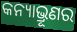
କନ୍ୟାଭ୍ରୂଣର